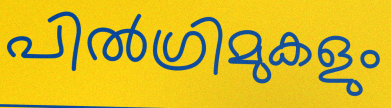
പിൽഗ്രിമുകളും